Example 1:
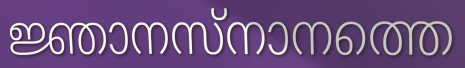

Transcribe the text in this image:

ജ്ഞാനസ്നാനത്തെ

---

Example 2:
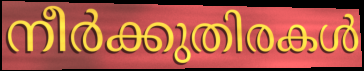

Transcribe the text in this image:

നീർക്കുതിരകൾ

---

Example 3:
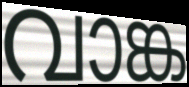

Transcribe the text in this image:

വാങ്ക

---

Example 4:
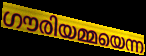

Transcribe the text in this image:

ഗൗരിയമ്മയെന്ന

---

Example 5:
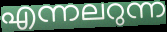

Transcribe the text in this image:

എന്നലറുന്ന